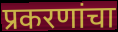
प्रकरणांचा